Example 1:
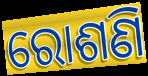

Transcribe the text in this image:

ରୋଶଣି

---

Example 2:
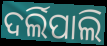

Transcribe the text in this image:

ଦର୍ଲିପାଲି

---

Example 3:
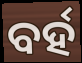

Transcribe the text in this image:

ବର୍ହ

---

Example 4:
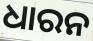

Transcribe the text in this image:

ଧାରନ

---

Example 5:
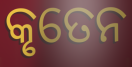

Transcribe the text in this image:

କୃତେନ